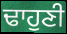
ਢਾਹੁਣੀ